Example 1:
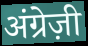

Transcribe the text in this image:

अंग्रेज़ी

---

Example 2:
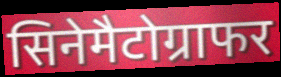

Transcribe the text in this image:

सिनेमैटोग्राफर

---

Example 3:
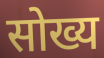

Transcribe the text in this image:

सोख्य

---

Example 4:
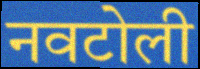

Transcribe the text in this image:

नवटोली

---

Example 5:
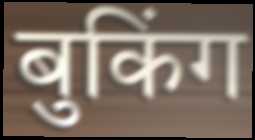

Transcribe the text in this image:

बुकिंग